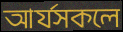
আৰ্যসকলে